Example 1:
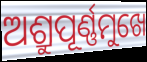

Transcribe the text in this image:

ଅଶ୍ରୁପୂର୍ଣ୍ଣମୁଖେ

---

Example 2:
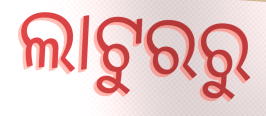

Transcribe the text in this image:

ଲାଟୁରରୁ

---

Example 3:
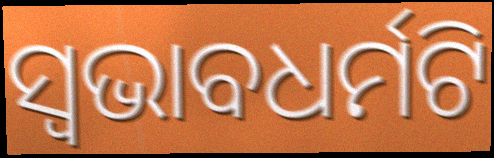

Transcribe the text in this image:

ସ୍ଵଭାବଧର୍ମଟି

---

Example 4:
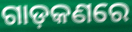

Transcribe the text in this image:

ଗାଡ଼କଣରେ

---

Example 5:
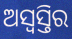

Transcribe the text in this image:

ଅସ୍ୱସ୍ତିର